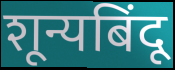
शून्यबिंदू